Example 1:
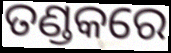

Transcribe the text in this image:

ତଣ୍ଡକରେ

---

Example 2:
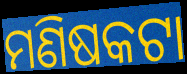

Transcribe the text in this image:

ମଣିଷକଟା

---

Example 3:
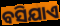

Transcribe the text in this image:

ବସିଯାଏ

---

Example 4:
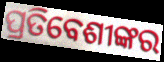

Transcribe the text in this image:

ପ୍ରତିବେଶୀଙ୍କର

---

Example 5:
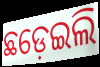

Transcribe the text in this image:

ଛଡ଼େଇଲି